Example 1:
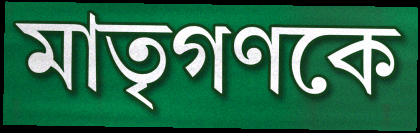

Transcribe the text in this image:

মাতৃগণকে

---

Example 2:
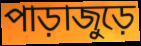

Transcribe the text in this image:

পাড়াজুড়ে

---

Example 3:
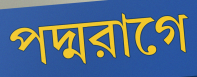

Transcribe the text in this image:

পদ্মরাগে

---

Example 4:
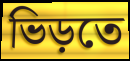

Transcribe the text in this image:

ভিড়তে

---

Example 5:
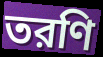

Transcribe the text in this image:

তরণি